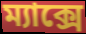
ম্যাক্সে